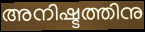
അനിഷ്ടത്തിനു